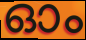
ഓം